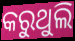
କରୁଥୁଲି